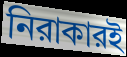
নিরাকারই